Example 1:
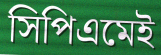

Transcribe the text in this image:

সিপিএমেই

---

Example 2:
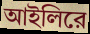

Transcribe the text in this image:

আইলিরে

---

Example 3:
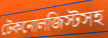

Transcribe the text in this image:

টেকনোলজিস্টসহ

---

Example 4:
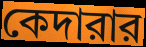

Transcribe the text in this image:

কেদারার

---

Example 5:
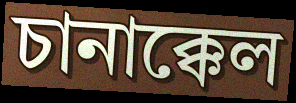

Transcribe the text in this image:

চানাক্কেল